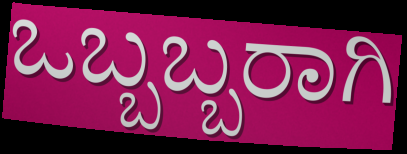
ಒಬ್ಬಬ್ಬರಾಗಿ